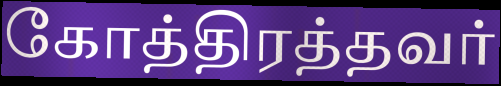
கோத்திரத்தவர்